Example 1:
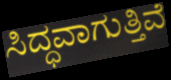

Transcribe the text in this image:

ಸಿದ್ಧವಾಗುತ್ತಿವೆ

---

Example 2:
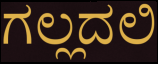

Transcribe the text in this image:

ಗಲ್ಲದಲಿ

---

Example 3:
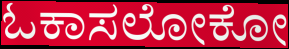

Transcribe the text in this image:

ಓಕಾಸಲೋಕೋ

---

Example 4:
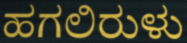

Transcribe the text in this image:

ಹಗಲಿರುಳು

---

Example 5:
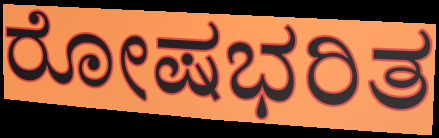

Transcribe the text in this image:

ರೋಷಭರಿತ